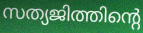
സത്യജിത്തിന്റെ